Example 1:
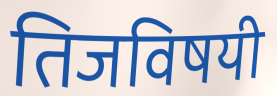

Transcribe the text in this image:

तिजविषयी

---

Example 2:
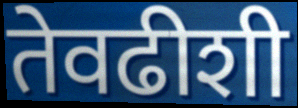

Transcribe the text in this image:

तेवढीशी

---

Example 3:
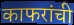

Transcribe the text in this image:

काफरांची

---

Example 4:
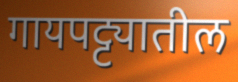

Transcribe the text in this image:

गायपट्ट्यातील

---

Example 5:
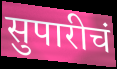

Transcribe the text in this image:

सुपारीचं